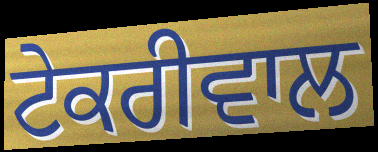
ਟੇਕਰੀਵਾਲ